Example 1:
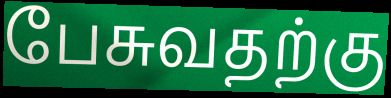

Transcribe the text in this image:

பேசுவதற்கு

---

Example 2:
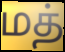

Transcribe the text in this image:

மத்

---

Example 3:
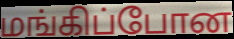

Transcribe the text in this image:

மங்கிப்போன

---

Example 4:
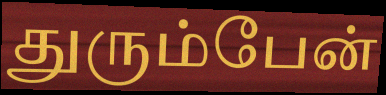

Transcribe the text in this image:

துரும்பேன்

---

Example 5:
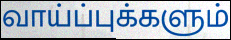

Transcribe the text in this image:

வாய்ப்புக்களும்